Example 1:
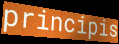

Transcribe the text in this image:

principis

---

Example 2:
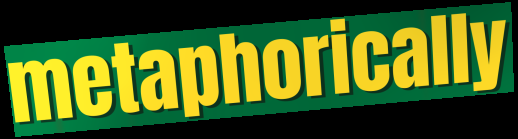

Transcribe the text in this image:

metaphorically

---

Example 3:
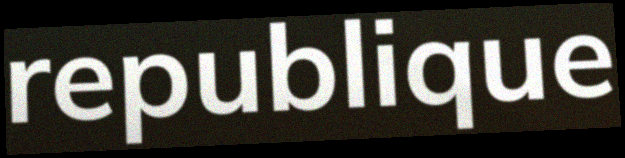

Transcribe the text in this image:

republique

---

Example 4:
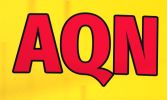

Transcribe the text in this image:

AQN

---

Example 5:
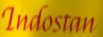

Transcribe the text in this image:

Indostan